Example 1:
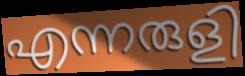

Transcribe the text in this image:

എന്നരുളി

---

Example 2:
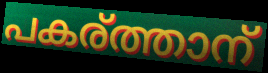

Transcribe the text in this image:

പകര്ത്താന്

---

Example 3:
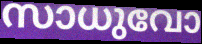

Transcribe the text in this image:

സാധുവോ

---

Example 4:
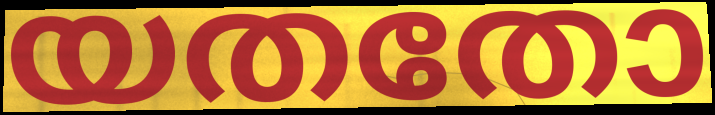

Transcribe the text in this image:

യതതോ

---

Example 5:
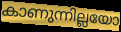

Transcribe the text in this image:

കാണുന്നില്ലയോ